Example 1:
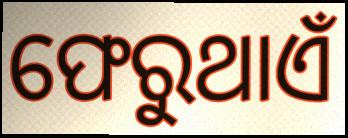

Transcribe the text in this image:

ଫେରୁଥାଏଁ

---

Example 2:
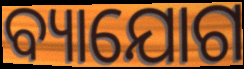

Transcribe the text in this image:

ବ୍ୟାଯୋଗ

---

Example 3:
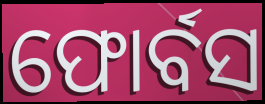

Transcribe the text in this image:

ଫୋର୍ବସ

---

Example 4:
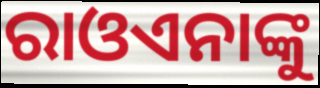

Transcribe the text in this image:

ରାଓଏନାଙ୍କୁ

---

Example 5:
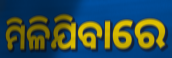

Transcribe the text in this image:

ମିଳିଯିବାରେ